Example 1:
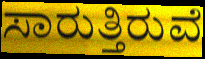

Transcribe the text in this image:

ಸಾರುತ್ತಿರುವೆ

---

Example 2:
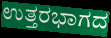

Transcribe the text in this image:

ಉತ್ತರಭಾಗದ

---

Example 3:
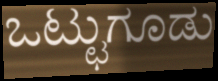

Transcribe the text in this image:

ಒಟ್ಟುಗೂಡು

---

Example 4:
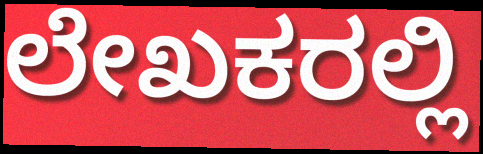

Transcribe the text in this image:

ಲೇಖಕರಲ್ಲಿ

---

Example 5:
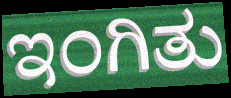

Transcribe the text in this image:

ಇಂಗಿತು